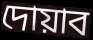
দোয়াব